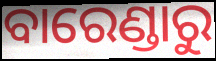
ବାରେଣ୍ଡାରୁ